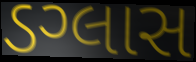
ડગ્લાસ